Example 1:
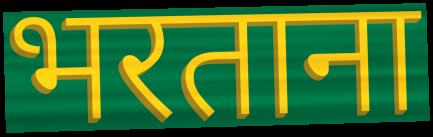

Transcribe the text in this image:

भरताना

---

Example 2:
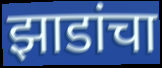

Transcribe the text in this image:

झाडांचा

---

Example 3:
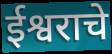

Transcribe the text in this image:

ईश्वराचे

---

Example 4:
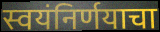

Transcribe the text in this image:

स्वयंनिर्णयाचा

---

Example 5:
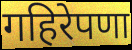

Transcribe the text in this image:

गहिरेपणा